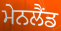
ਮੇਨਲੈਂਡ